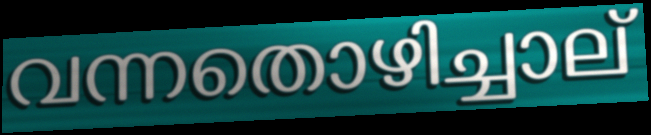
വന്നതൊഴിച്ചാല്